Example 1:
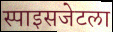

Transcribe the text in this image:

स्पाइसजेटला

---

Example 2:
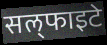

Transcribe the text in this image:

सल्फाइटे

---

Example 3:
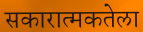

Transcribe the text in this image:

सकारात्मकतेला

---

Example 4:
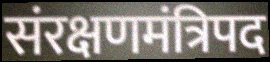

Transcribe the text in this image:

संरक्षणमंत्रिपद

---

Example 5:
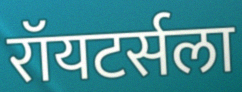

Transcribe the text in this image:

रॉयटर्सला